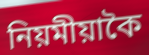
নিয়মীয়াকৈ